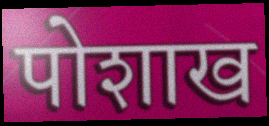
पोशाख